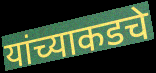
यांच्याकडचे